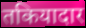
तकियादार